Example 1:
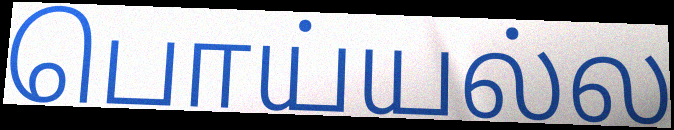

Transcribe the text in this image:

பொய்யல்ல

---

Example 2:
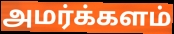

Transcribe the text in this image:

அமர்க்களம்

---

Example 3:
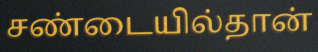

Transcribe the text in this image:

சண்டையில்தான்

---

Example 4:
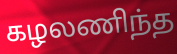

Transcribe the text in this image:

கழலணிந்த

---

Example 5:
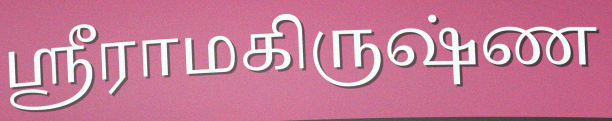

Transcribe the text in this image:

ஸ்ரீராமகிருஷ்ண